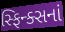
સ્ફિન્ક્સનાં